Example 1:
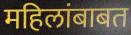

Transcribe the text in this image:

महिलांबाबत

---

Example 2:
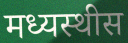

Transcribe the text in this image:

मध्यस्थीस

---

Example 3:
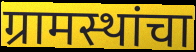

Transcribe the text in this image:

ग्रामस्थांचा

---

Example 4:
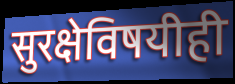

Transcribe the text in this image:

सुरक्षेविषयीही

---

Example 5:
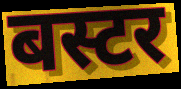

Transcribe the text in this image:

बस्टर